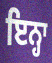
ਇਨ੍ਹਾ